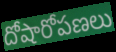
దోషారోపణలు